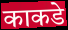
काकडे